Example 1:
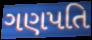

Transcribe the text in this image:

ગણપતિ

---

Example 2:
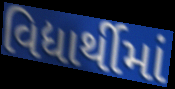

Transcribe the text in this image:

વિદ્યાર્થીમાં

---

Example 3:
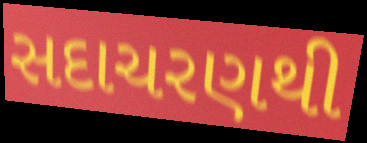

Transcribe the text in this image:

સદાચરણથી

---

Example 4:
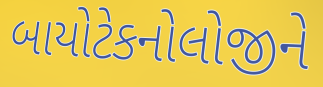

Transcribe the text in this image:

બાયોટેકનોલોજીને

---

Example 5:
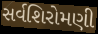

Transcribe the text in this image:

સર્વશિરોમણી